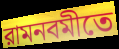
রামনবমীতে